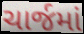
ચાર્જમાં